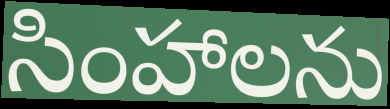
సింహాలను